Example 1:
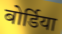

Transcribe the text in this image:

बोर्डिया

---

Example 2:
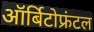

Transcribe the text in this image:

ऑर्बिटोफ्रंटल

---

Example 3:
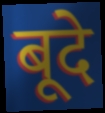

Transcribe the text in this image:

बूदे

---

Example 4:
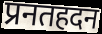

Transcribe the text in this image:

प्रनतहदन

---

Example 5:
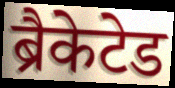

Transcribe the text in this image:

ब्रैकेटेड